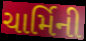
ચાર્મિની